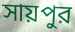
সায়পুর